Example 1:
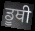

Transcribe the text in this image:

ਡੂਥੀ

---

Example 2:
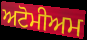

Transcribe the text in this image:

ਅਟੋਮੀਅਮ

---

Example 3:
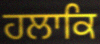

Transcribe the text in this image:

ਹਲਾਕਿ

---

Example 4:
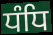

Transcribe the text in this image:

ਧੰਧਿ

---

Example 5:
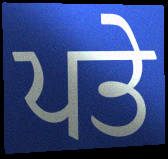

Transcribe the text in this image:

ਪਤੇ